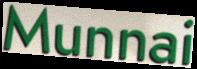
Munnai